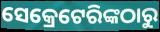
ସେକ୍ରେଟେରିଙ୍କଠାରୁ